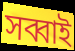
সব্বাই